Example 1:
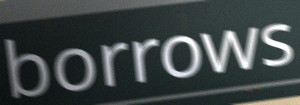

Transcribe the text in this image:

borrows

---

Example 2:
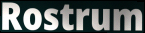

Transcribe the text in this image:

Rostrum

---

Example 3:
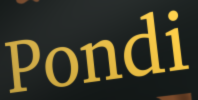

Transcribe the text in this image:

Pondi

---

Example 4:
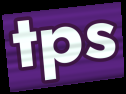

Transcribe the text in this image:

tps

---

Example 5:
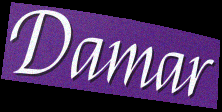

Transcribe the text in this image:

Damar